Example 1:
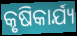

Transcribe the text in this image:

କୃଷିକାର୍ଯ୍ୟ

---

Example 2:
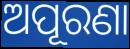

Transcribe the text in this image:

ଅପୂରଣା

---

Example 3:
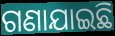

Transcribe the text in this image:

ଗଣାଯାଇଛି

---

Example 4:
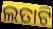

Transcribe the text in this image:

ଲତାଟି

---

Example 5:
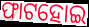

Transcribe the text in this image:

ଫାଟହୋଇ